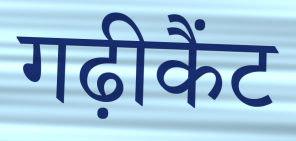
गढ़ीकैंट